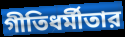
গীতিধর্মীতার